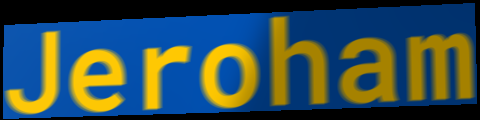
Jeroham